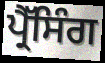
ਪ੍ਰੈੱਸਿੰਗ